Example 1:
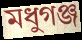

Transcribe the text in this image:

মধুগঞ্জ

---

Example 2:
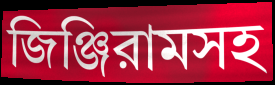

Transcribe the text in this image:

জিঞ্জিরামসহ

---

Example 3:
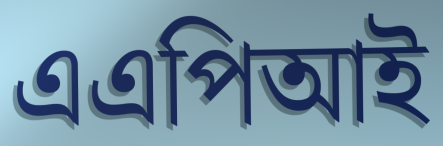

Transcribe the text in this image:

এএপিআই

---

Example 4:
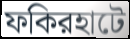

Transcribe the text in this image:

ফকিরহাটে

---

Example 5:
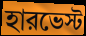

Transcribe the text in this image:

হারভেস্ট